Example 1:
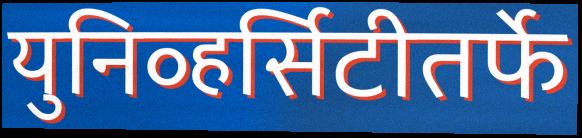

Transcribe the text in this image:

युनिव्हर्सिटीतर्फे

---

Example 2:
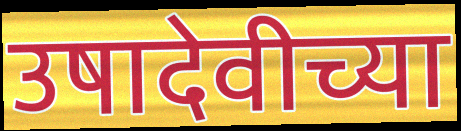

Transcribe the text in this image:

उषादेवीच्या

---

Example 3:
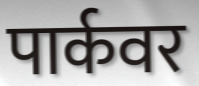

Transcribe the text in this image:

पार्कवर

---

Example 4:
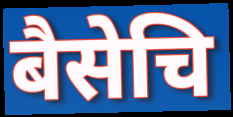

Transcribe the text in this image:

बैसेचि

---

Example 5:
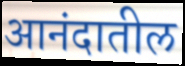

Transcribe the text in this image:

आनंदातील